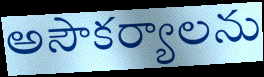
అసౌకర్యాలను